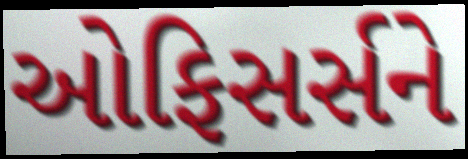
ઓફિસર્સને